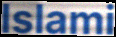
Islami